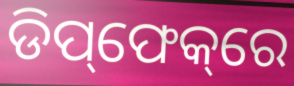
ଡିପ୍‌ଫେକ୍‌ରେ